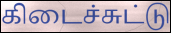
கிடைச்சுட்டு